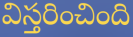
విస్తరించింది